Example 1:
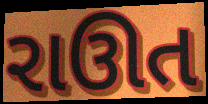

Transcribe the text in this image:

રાઊત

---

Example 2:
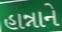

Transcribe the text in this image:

હાન્નાને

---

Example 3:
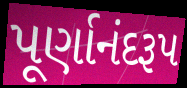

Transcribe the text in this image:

પૂર્ણાનંદરૂપ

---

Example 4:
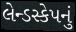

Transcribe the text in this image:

લેન્ડસ્કેપનું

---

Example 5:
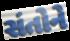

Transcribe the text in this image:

સંતોને